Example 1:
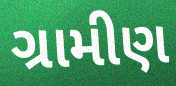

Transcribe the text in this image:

ગ્રામીણ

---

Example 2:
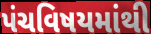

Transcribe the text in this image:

પંચવિષયમાંથી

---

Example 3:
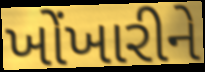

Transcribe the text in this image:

ખોંખારીને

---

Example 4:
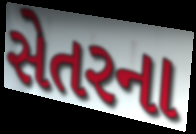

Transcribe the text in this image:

સેતરના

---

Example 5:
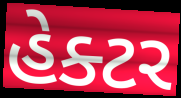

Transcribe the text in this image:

હેક્ટર